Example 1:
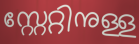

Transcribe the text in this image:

സ്റ്റേറ്റിനുള്ള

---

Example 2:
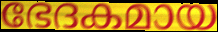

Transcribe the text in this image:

ഭേദകമായ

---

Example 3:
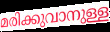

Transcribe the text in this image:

മരിക്കുവാനുള്ള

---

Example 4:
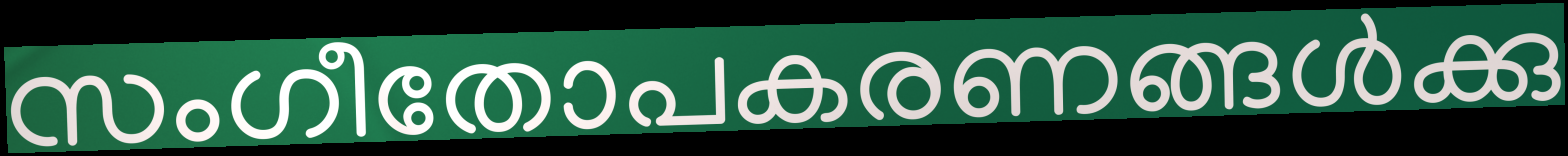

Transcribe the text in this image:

സംഗീതോപകരണങ്ങൾക്കു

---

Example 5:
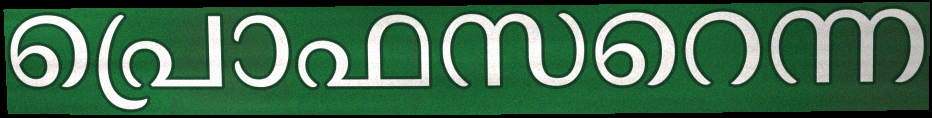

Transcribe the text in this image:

പ്രൊഫസറെന്ന